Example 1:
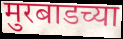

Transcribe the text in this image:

मुरबाडच्या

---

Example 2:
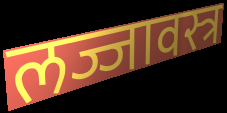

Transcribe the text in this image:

लज्जावस्त्र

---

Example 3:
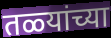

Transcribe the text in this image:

तळ्यांच्या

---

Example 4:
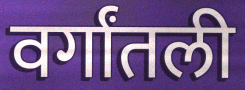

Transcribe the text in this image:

वर्गांतली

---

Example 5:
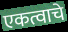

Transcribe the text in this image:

एकत्वाचे